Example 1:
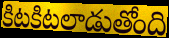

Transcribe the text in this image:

కిటకిటలాడుతోంది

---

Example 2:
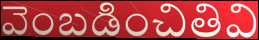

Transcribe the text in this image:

వెంబడించితివి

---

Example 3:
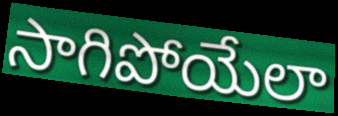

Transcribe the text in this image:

సాగిపోయేలా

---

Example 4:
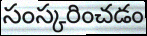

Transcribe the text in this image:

సంస్కరించడం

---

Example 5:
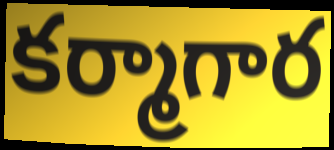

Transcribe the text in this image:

కర్మాగార